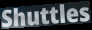
Shuttles